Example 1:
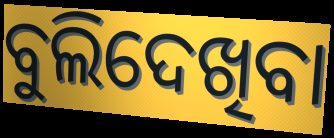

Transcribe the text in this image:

ବୁଲିଦେଖିବା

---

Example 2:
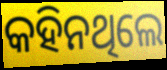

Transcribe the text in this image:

କହିନଥିଲେ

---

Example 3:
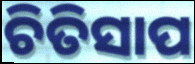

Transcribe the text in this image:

ଚିତିସାପ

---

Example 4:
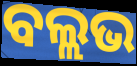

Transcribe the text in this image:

ବଲ୍ଲଭ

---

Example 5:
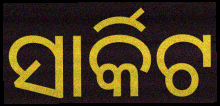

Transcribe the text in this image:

ସାର୍କିଟ